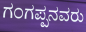
ಗಂಗಪ್ಪನವರು